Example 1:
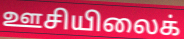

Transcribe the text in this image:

ஊசியிலைக்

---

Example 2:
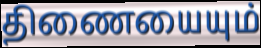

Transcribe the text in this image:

திணையையும்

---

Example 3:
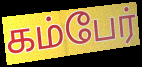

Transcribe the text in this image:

கம்பேர்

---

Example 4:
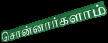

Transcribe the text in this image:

சொன்னார்களாம்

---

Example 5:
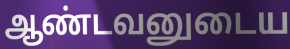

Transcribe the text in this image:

ஆண்டவனுடைய